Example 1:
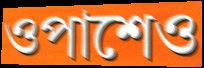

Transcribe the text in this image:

ওপাশেও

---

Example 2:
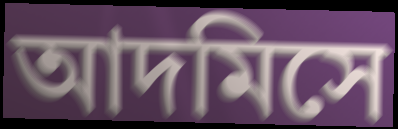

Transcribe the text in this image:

আদমিসে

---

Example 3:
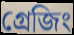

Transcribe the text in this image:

গ্রেজিং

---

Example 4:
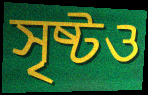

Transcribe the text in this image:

সৃষ্টও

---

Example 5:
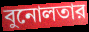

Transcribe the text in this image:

বুনোলতার